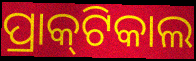
ପ୍ରାକ୍‌ଟିକାଲ